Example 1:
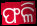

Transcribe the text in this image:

ଫଳି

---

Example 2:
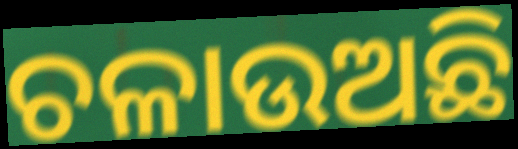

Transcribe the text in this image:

ଚଳାଉଅଛି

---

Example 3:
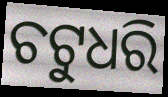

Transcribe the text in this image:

ଚଟୁଧରି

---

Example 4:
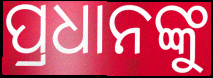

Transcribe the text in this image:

ପ୍ରଧାନଙ୍କୁ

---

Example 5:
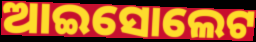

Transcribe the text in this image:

ଆଇସୋଲେଟ